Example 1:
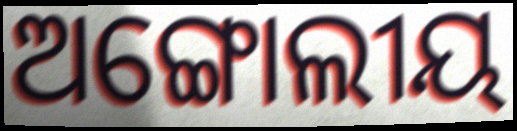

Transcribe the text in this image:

ଅଙ୍ଗୋଲୀୟ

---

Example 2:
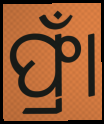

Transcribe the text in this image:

ଫ୍ରାଁ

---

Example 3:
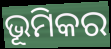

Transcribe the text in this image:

ଭୂମିକର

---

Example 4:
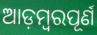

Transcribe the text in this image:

ଆଡ଼ମ୍ବରପୂର୍ଣ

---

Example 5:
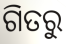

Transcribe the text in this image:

ଗିତରୁ